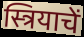
स्त्रियाचें